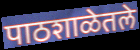
पाठशाळेतले